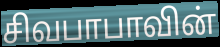
சிவபாபாவின்